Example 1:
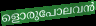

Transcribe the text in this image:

ളൊരുപോലവൻ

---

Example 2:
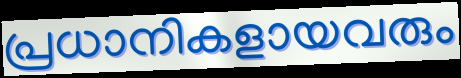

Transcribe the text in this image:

പ്രധാനികളായവരും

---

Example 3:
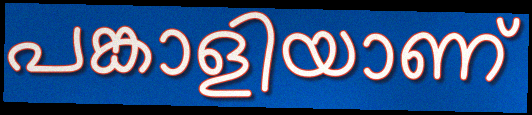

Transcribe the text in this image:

പങ്കാളിയാണ്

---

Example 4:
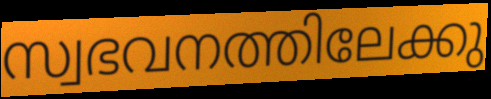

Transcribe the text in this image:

സ്വഭവനത്തിലേക്കു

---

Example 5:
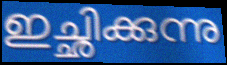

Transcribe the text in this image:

ഇച്ഛിക്കുന്നു